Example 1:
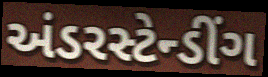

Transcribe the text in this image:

અંડરસ્ટેન્ડીંગ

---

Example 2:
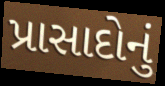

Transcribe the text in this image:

પ્રાસાદોનું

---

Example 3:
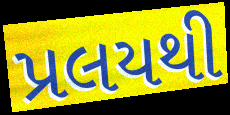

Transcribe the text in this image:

પ્રલયથી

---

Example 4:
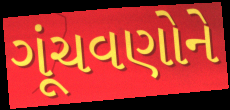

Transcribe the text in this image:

ગૂંચવણોને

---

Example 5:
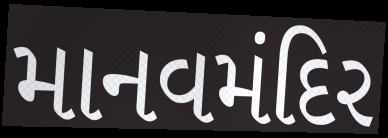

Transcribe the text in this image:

માનવમંદિર